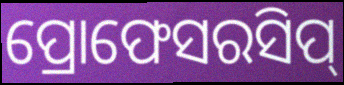
ପ୍ରୋଫେସରସିପ୍